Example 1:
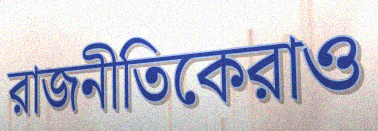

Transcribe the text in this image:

রাজনীতিকেরাও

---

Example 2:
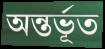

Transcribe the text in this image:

অন্তর্ভূত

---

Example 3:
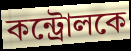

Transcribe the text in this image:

কন্ট্রোলকে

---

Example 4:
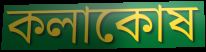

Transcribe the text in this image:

কলাকোষ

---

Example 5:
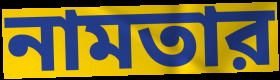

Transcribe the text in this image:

নামতার